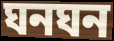
ঘনঘন